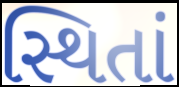
સ્થિતાં